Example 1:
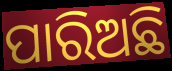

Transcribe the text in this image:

ପାରିଅଛି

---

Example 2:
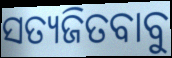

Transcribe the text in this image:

ସତ୍ୟଜିତବାବୁ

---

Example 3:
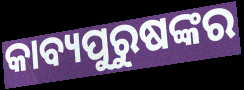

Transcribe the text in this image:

କାବ୍ୟପୁରୁଷଙ୍କର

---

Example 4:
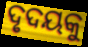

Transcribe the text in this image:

ଦୃଦୟକୁ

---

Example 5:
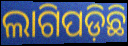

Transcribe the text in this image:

ଲାଗିପଡ଼ିଛି